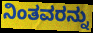
ನಿಂತವರನ್ನು